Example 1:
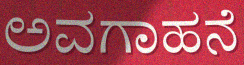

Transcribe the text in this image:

ಅವಗಾಹನೆ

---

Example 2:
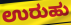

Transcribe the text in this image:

ಉರುಹು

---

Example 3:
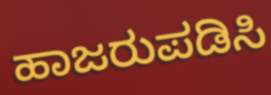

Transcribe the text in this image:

ಹಾಜರುಪಡಿಸಿ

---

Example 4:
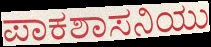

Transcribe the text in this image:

ಪಾಕಶಾಸನಿಯು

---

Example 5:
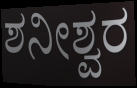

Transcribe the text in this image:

ಶನೀಶ್ವರ